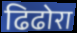
ढिढोरा